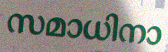
സമാധിനാ